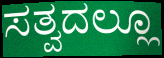
ಸತ್ವದಲ್ಲೂ